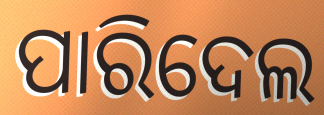
ପାରିଦେଲ